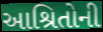
આશ્રિતોની